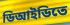
ডিআইডিতে